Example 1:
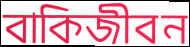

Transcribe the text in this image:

বাকিজীবন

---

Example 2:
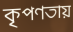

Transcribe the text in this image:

কৃপণতায়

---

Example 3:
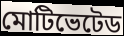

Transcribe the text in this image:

মোটিভেটেড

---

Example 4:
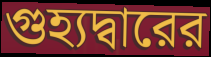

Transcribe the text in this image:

গুহ্যদ্বারের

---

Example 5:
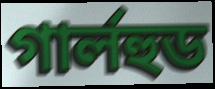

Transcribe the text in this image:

গার্লহুড